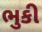
ભુકી